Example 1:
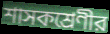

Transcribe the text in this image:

শাসকশ্রেণীর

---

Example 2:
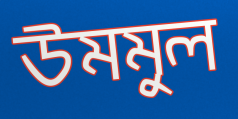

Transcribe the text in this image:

উমমুল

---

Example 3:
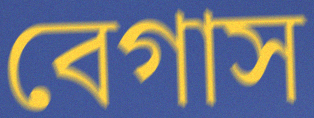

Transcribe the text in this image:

বেগাস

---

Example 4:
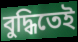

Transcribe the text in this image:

বুদ্ধিতেই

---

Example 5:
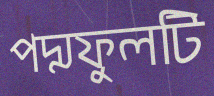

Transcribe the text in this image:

পদ্মফুলটি